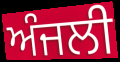
ਅੰਜਲੀ